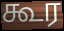
கூர